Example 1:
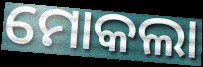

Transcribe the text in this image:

ମୋକଲା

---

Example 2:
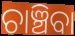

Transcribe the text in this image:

ଚାଞ୍ଚିବା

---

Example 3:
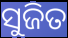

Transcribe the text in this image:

ସୁଜିତ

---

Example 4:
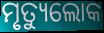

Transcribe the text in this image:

ମୃତ୍ୟୁଲୋକ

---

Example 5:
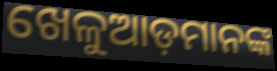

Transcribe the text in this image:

ଖେଳୁଆଡ଼ମାନଙ୍କ